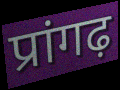
प्रांगढ़